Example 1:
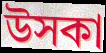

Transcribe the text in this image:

উসকা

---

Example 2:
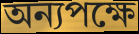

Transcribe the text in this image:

অন্যপক্ষে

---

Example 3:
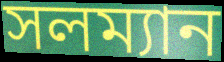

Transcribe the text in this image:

সলম্যান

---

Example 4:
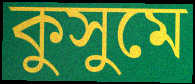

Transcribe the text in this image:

কুসুমে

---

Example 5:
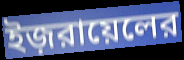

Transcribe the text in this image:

ইজ়রায়েলের